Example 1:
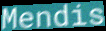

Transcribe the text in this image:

Mendis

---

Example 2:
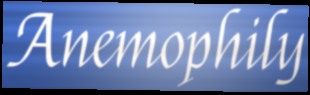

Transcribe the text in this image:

Anemophily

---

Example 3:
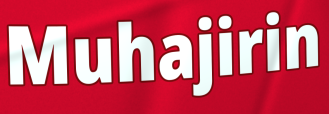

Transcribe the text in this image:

Muhajirin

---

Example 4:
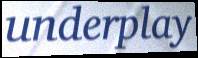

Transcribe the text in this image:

underplay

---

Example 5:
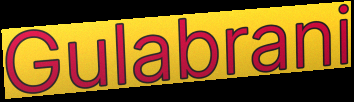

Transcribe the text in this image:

Gulabrani